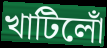
খাটিলোঁ